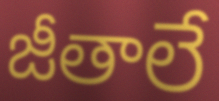
జీతాలే